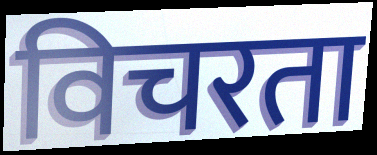
विचरता